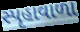
સ્પૃહાવાળા